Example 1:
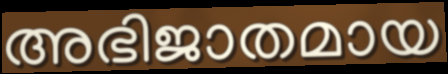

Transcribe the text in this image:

അഭിജാതമായ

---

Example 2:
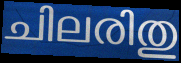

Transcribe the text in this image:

ചിലരിതു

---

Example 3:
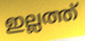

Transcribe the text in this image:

ഇല്ലത്ത്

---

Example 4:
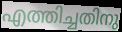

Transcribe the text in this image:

എത്തിച്ചതിനു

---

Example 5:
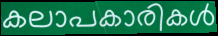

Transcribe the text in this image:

കലാപകാരികൾ